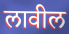
लावील